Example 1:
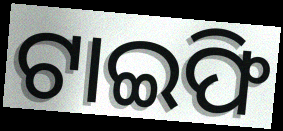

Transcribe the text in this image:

ଟାଇଫି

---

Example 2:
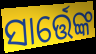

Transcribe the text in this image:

ସାର୍ତ୍ତେଙ୍କ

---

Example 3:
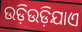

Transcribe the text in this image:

ଉଡ଼ିଉଡ଼ିଯାଏ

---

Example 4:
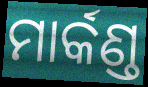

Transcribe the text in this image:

ମାର୍କଣ୍ଡ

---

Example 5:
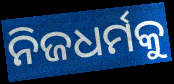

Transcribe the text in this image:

ନିଜଧର୍ମକୁ